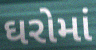
ઘરોમાં